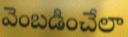
వెంబడించేలా